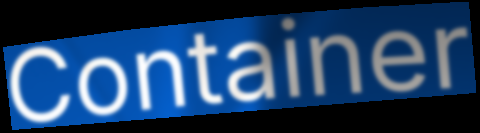
Container